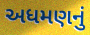
અધમણનું